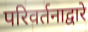
परिवर्तनाद्वारे